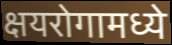
क्षयरोगामध्ये